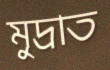
মুদ্ৰাত